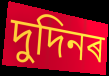
দুদিনৰ